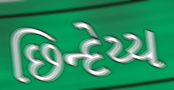
છિન્દેય્ય